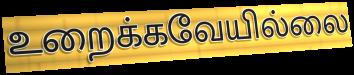
உறைக்கவேயில்லை